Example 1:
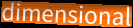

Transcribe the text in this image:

dimensional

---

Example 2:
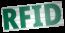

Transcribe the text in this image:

RFID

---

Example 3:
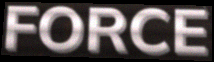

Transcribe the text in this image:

FORCE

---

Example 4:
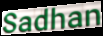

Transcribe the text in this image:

Sadhan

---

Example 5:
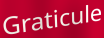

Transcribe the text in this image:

Graticule